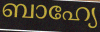
ബാഹ്യേ